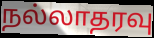
நல்லாதரவு